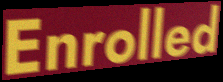
Enrolled